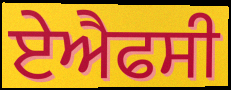
ਏਐਫਸੀ